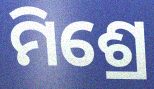
ମିଶ୍ରେ